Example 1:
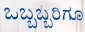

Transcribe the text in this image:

ಒಬ್ಬಬ್ಬರಿಗೂ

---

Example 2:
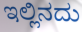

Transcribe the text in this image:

ಇಲ್ಲಿನದು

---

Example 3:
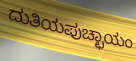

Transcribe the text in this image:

ದುತಿಯಪುಚ್ಛಾಯಂ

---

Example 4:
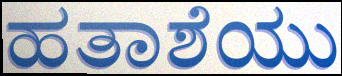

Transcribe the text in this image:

ಹತಾಶೆಯು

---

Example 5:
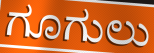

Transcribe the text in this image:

ಗೂಗುಲು